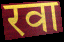
रवा